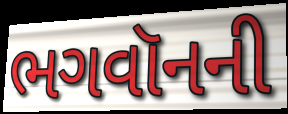
ભગવૉનની